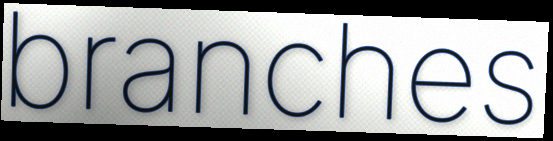
branches